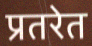
प्रतरेत